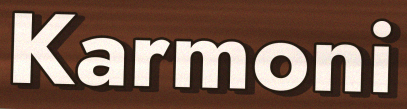
Karmoni